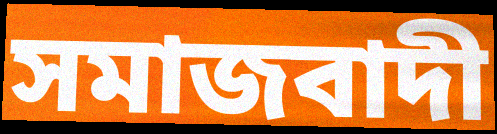
সমাজবাদী